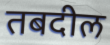
तबदील